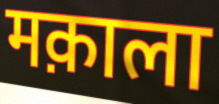
मक़ाला